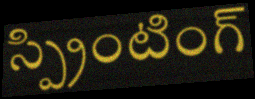
స్ప్రింటింగ్